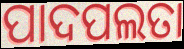
ପାଦପଲତା